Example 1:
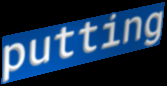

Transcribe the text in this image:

putting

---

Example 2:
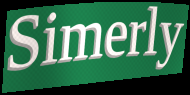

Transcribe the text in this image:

Simerly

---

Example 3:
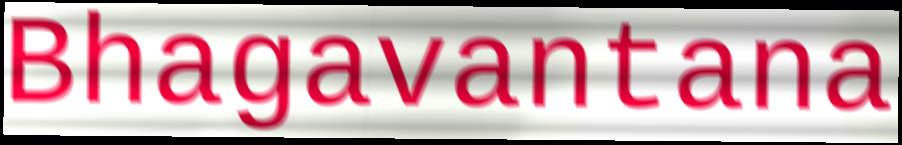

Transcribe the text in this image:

Bhagavantana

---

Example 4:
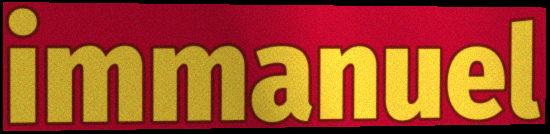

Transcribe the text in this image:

immanuel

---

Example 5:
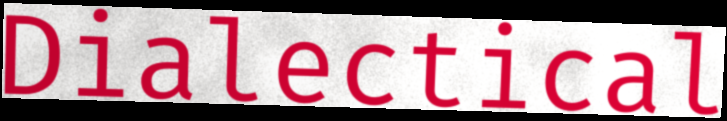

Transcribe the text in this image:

Dialectical